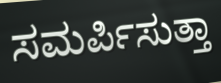
ಸಮರ್ಪಿಸುತ್ತಾ